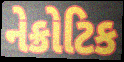
નેક્રોટિક